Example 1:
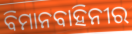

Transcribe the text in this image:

ବିମାନବାହିନୀର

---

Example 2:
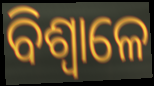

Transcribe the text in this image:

ବିଶ୍ଵାଳେ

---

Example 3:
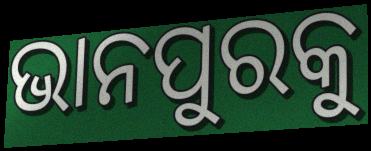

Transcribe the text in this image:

ଭାନପୁରକୁ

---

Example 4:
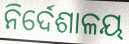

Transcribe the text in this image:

ନିର୍ଦେଶାଳୟ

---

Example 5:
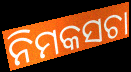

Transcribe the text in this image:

ନିମକସଚା